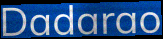
Dadarao